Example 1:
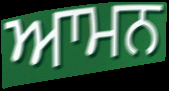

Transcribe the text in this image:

ਆਮਨ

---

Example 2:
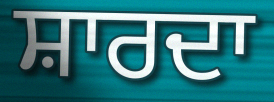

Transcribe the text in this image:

ਸ਼ਾਰਦਾ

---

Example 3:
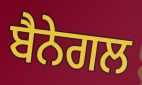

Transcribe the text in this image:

ਬੈਨੇਗਲ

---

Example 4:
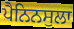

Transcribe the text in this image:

ਪੈਨਿਨਸੁਲਾ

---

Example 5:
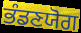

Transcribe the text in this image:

ਭੰਡਣਯੋਗ